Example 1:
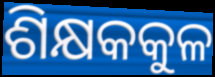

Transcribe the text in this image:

ଶିକ୍ଷକକୁଳ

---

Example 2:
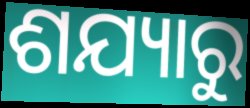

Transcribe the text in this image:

ଶଯ୍ୟାରୁ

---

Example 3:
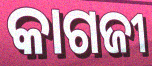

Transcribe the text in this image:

କାଗଜୀ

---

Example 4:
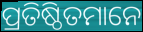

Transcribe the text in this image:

ପ୍ରତିଷ୍ଠିତମାନେ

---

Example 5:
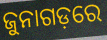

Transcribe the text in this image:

ଜୁନାଗଡ଼ରେ